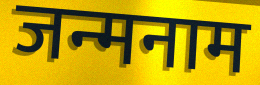
जन्मनाम